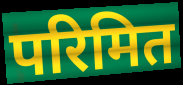
परिमित